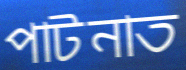
পাটনাত